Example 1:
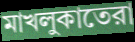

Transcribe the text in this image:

মাখলুকাতেরা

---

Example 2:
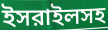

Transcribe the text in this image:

ইসরাইলসহ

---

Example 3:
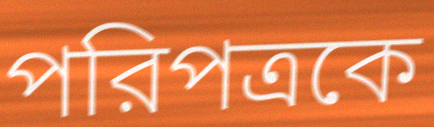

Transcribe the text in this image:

পরিপত্রকে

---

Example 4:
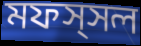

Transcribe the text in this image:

মফস্‌সল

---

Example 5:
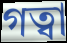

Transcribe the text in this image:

গত্বা